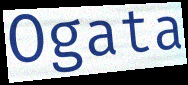
Ogata